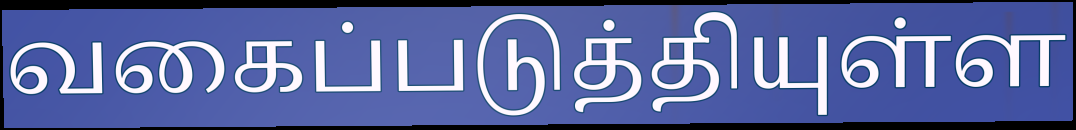
வகைப்படுத்தியுள்ள